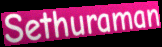
Sethuraman